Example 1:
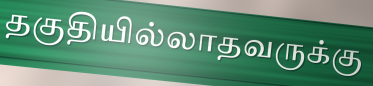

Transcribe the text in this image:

தகுதியில்லாதவருக்கு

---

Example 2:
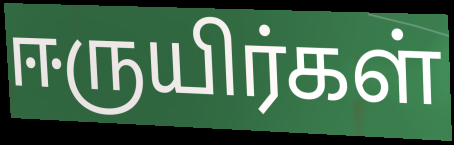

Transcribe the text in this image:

ஈருயிர்கள்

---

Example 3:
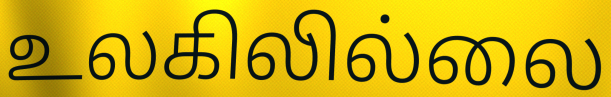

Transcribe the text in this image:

உலகிலில்லை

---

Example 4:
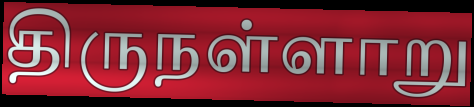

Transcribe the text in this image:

திருநள்ளாறு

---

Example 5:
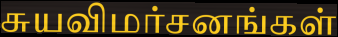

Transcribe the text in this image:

சுயவிமர்சனங்கள்